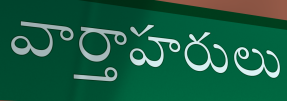
వార్తాహరులు